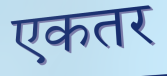
एकतर